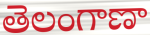
తెలంగాణా